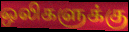
ஒலிகளுக்கு